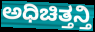
ಅಧಿಚಿತ್ತನ್ತಿ